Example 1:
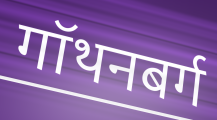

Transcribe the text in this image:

गॉथनबर्ग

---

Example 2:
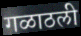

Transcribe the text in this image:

गळाठली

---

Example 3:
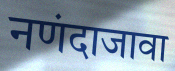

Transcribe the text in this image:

नणंदाजावा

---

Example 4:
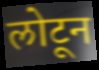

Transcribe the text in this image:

लोटून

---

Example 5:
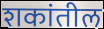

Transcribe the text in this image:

शकांतील